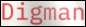
Digman